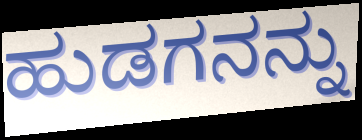
ಹುಡಗನನ್ನು